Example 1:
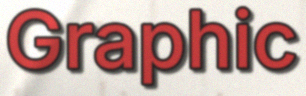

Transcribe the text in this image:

Graphic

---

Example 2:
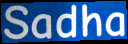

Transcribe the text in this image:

Sadha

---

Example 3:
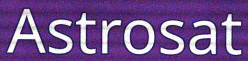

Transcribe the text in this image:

Astrosat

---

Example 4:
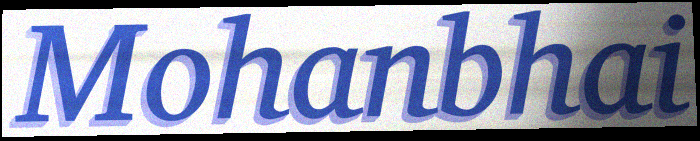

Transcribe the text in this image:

Mohanbhai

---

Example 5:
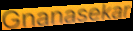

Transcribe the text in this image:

Gnanasekar